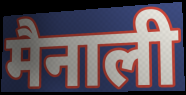
मैनाली